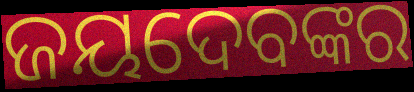
ଜୟଦେବଙ୍କର